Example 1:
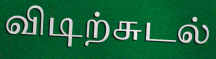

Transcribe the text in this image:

விடிற்சுடல்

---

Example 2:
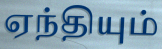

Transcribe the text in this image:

ஏந்தியும்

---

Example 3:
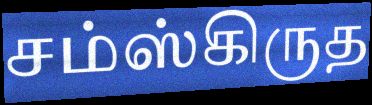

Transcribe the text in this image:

சம்ஸ்கிருத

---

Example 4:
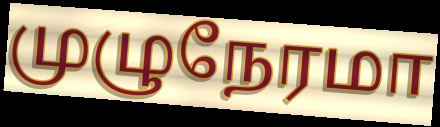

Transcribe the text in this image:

முழுநேரமா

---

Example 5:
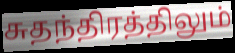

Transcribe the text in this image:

சுதந்திரத்திலும்